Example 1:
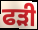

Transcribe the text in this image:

ਫੜੀ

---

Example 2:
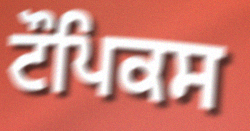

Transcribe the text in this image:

ਟੌਪਿਕਸ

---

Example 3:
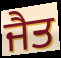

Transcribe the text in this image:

ਜੈਤ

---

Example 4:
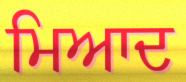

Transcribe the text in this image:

ਮਿਆਦ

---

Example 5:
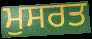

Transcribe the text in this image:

ਮੁਸਰਤ